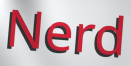
Nerd